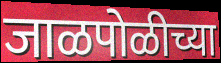
जाळपोळीच्या